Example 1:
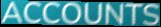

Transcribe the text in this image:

ACCOUNTS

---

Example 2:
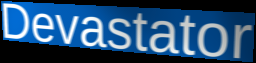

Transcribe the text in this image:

Devastator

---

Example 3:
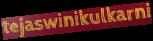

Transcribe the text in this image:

tejaswinikulkarni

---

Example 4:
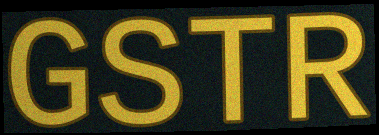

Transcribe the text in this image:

GSTR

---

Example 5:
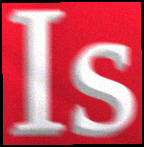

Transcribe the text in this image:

Is